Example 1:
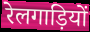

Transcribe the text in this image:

रेलगाड़ियों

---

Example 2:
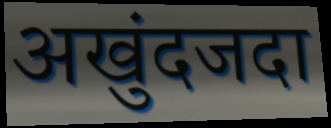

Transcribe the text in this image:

अखुंदजदा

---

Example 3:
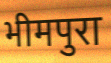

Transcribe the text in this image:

भीमपुरा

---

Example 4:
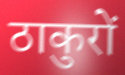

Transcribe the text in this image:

ठाकुरों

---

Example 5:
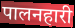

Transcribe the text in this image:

पालनहारी